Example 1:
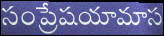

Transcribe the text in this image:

సంప్రేషయామాస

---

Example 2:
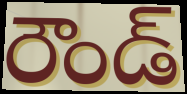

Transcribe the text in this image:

రౌండ్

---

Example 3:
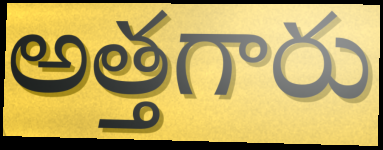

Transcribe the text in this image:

అత్తగారు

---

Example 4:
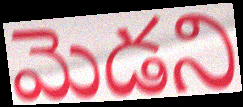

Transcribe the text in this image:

మెడని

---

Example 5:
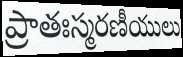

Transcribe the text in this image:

ప్రాతఃస్మరణీయులు